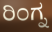
ರಿಂಗ್ನ